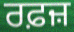
ਰਫ਼ਜ਼